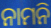
ନାମନି